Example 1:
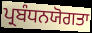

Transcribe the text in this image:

ਪ੍ਰਬੰਧਨਯੋਗਤਾ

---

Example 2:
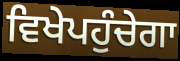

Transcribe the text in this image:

ਵਿਖੇਪਹੁੰਚੇਗਾ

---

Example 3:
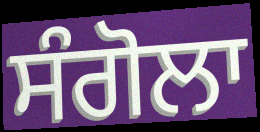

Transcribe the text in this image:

ਸੰਗੋਲਾ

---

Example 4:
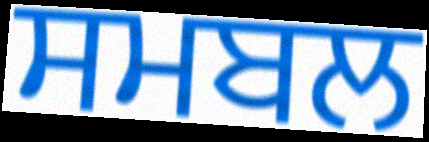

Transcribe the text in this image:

ਸਮਬਲ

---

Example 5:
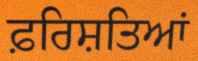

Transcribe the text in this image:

ਫ਼ਰਿਸ਼ਤਿਆਂ